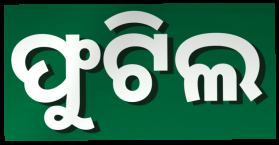
ଫୁଟିଲ